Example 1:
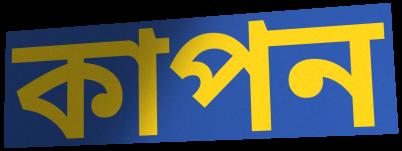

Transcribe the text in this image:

কাপন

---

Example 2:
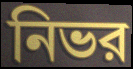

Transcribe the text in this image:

নিভর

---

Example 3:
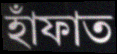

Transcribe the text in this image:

হাঁফাত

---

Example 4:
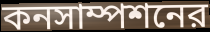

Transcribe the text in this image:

কনসাম্পশনের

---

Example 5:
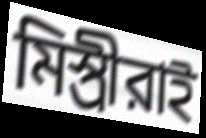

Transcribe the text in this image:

মিস্ত্রীরাই